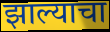
झाल्‍याचा